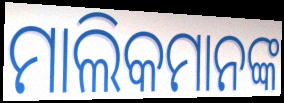
ମାଲିକମାନଙ୍କ